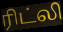
ரிட்லி